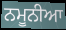
ਨਮੂਨੀਆ